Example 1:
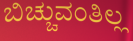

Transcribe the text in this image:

ಬಿಚ್ಚುವಂತಿಲ್ಲ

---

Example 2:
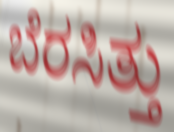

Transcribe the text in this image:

ಬೆರಸಿತ್ತು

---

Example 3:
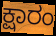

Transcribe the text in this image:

ಕ್ಷಾರಂ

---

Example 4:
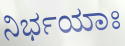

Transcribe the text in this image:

ನಿರ್ಭಯಾಃ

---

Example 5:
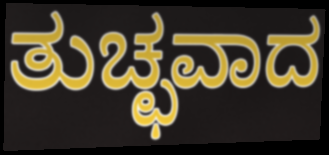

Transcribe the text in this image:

ತುಚ್ಛವಾದ